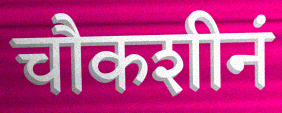
चौकशीनं